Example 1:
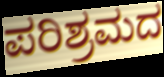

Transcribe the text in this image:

ಪರಿಶ್ರಮದ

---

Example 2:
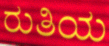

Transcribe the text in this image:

ರುತಿಯ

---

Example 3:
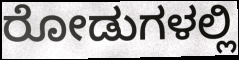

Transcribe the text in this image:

ರೋಡುಗಳಲ್ಲಿ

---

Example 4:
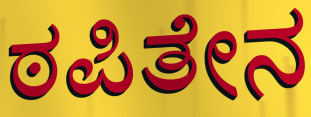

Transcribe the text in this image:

ಠಪಿತೇನ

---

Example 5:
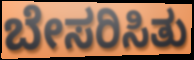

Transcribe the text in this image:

ಬೇಸರಿಸಿತು